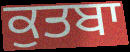
ਕੁਤਬਾ